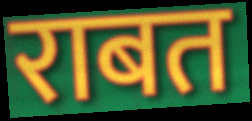
राबत